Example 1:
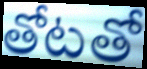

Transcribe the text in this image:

తోటతో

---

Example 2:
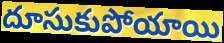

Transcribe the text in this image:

దూసుకుపోయాయి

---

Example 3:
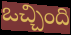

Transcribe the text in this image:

ఒచ్చింది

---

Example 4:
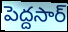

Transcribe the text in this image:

పెద్దసార్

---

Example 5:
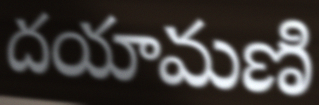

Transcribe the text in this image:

దయామణి